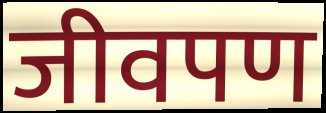
जीवपण